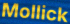
Mollick